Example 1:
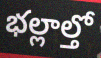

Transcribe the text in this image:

భల్లాల్తో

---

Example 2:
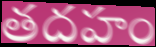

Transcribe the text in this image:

తదహం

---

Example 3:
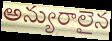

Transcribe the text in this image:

అన్యురాలైన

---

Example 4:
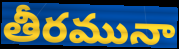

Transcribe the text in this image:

తీరమునా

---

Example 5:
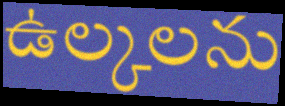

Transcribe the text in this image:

ఉల్కలను